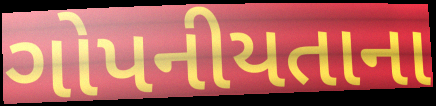
ગોપનીયતાના